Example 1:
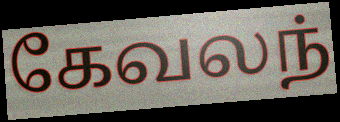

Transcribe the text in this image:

கேவலந்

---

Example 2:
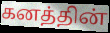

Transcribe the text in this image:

கனத்தின்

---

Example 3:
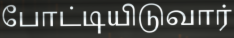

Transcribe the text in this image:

போட்டியிடுவார்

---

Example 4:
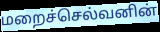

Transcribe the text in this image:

மறைச்செல்வனின்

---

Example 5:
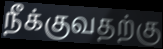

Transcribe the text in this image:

நீக்குவதற்கு